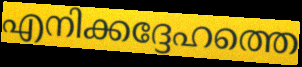
എനിക്കദ്ദേഹത്തെ